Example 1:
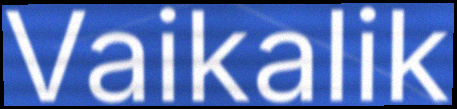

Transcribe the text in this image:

Vaikalik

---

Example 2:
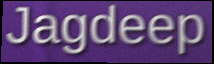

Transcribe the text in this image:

Jagdeep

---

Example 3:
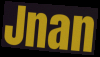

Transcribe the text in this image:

Jnan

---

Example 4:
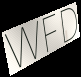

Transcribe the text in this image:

WFD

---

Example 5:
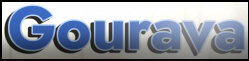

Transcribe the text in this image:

Gourava